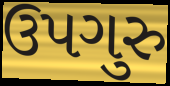
ઉપગુરુ